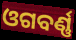
ଓଗବର୍ଣ୍ଣ